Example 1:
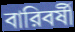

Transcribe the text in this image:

বারিবর্ষী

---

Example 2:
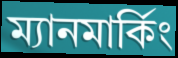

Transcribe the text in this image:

ম্যানমার্কিং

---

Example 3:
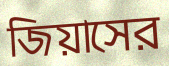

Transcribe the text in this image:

জিয়াসের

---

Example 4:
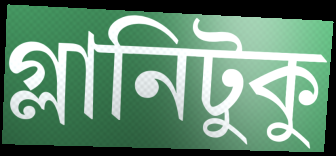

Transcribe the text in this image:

গ্লানিটুকু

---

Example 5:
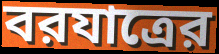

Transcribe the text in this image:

বরযাত্রের